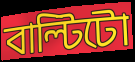
বাল্টিটো